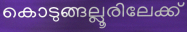
കൊടുങ്ങല്ലൂരിലേക്ക്